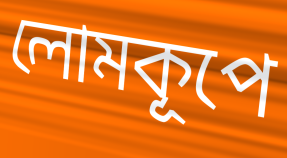
লোমকূপে